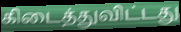
கிடைத்துவிட்டது